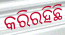
କରିରହିଛି